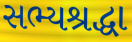
સભ્યશ્રદ્ધા